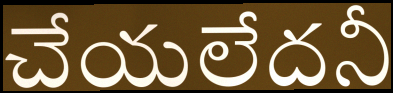
చేయలేదనీ